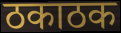
ठकाठक